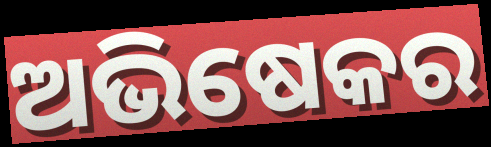
ଅଭିଷେକର